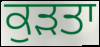
ਕੁੜਤਾ